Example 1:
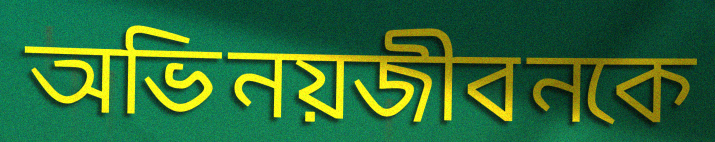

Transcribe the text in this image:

অভিনয়জীবনকে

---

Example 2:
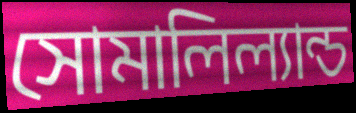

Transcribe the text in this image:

সোমালিল্যান্ড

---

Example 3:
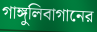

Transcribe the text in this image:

গাঙ্গুলিবাগানের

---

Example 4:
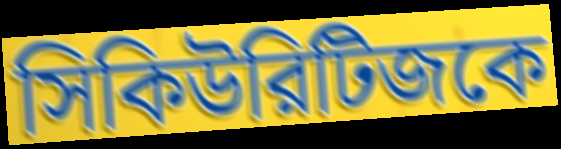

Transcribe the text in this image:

সিকিউরিটিজকে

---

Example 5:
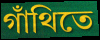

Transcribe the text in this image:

গাঁথিতে